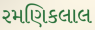
રમણિકલાલ